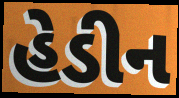
હેડીન